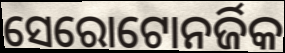
ସେରୋଟୋନର୍ଜିକ